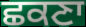
ਛਕਣਾ